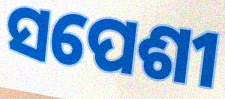
ସପେଶୀ